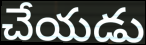
చేయడు